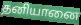
தனியானை